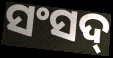
ସଂସଦ୍